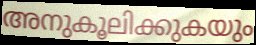
അനുകൂലിക്കുകയും